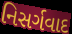
નિસર્ગવાદ